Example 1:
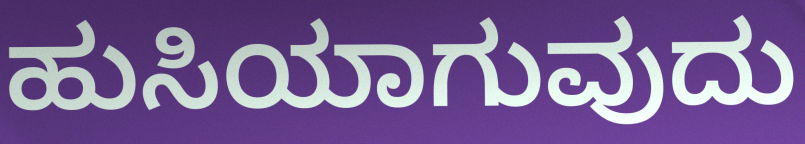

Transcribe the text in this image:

ಹುಸಿಯಾಗುವುದು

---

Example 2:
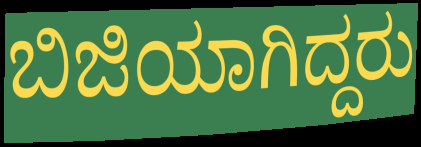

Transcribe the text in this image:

ಬಿಜಿಯಾಗಿದ್ದರು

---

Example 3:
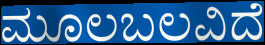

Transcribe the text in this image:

ಮೂಲಬಲವಿದೆ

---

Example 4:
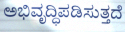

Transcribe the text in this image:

ಅಭಿವೃದ್ಧಿಪಡಿಸುತ್ತದೆ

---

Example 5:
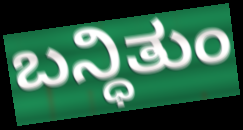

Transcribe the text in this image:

ಬನ್ಧಿತುಂ